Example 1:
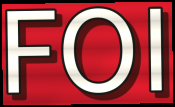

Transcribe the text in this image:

FOI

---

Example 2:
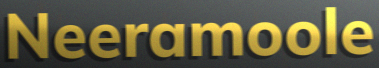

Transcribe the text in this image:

Neeramoole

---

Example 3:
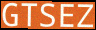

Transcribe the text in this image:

GTSEZ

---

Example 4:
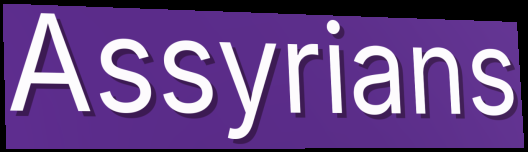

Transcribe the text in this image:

Assyrians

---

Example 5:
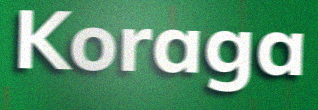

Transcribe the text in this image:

Koraga